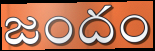
జందం